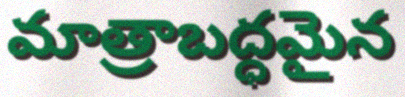
మాత్రాబద్ధమైన